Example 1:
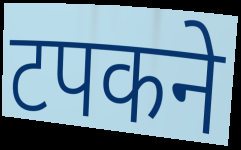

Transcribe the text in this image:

टपकने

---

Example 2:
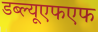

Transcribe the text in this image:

डब्ल्यूएफएफ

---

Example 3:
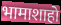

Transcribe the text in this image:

भामाशाहो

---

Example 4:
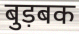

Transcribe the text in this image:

बुड़बक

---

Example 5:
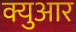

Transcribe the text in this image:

क्युआर